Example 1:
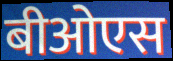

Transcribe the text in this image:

बीओएस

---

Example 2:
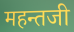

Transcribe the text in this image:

महन्तजी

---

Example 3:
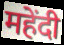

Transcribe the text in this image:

महेंदी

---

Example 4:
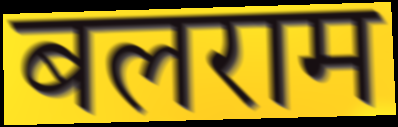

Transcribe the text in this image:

बलराम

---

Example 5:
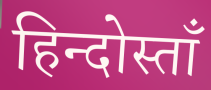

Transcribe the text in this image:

हिन्दोस्ताँ